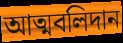
আত্মবলিদান